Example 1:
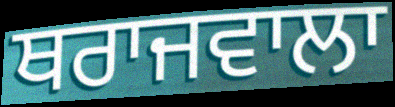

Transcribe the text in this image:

ਥਰਾਜਵਾਲਾ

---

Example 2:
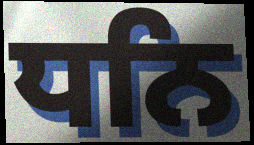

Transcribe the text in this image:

ਧਨਿ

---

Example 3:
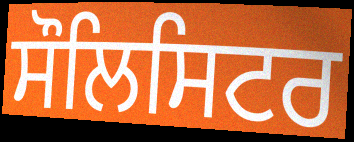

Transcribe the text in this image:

ਸੌਲਿਸਿਟਰ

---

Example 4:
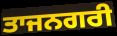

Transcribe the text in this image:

ਤਾਜਨਗਰੀ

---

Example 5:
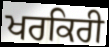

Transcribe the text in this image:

ਖਰਕਿਰੀ